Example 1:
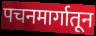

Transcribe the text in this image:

पचनमार्गातून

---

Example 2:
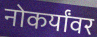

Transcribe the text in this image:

नोकर्यांवर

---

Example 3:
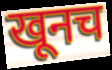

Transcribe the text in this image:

खूनच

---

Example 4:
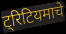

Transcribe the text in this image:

ट्रिटियमाचे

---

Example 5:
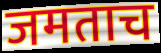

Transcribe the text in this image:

जमताच